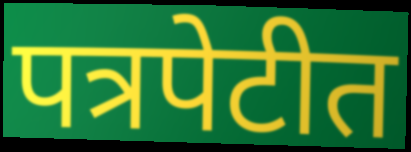
पत्रपेटीत